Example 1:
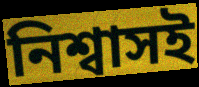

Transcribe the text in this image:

নিশ্বাসই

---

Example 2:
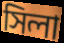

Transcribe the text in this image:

সিলা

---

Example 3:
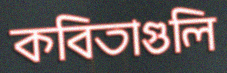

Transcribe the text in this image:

কবিতাগুলি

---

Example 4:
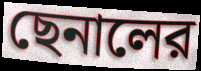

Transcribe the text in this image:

ছেনালের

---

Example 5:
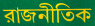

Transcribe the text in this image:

রাজনীতিক